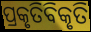
ପ୍ରକୃତିବିକୃତି